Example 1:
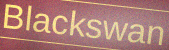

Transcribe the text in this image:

Blackswan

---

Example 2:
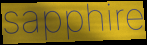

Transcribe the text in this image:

sapphire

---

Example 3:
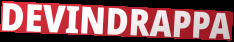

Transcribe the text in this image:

DEVINDRAPPA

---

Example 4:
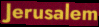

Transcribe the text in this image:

Jerusalem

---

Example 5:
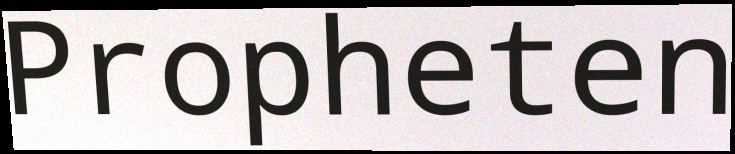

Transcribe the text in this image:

Propheten